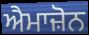
ਐਮਾਜ਼ੋਨ